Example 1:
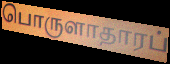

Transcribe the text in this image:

பொருளாதாரப்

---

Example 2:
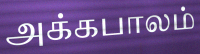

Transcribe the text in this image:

அக்கபாலம்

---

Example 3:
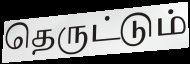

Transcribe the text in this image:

தெருட்டும்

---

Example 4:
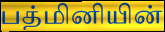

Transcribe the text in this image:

பத்மினியின்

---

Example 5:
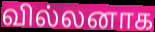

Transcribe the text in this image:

வில்லனாக